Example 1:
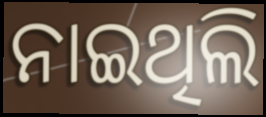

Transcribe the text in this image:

ନାଇଥିଲି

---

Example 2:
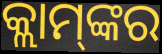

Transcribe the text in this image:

କ୍ଲାମ୍‌ଙ୍କର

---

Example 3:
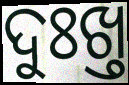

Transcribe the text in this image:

ଦୁଃଖ୍ତ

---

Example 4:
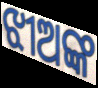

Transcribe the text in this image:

ଝୀଅଙ୍କ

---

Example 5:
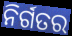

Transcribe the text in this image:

ନିର୍ଗତର